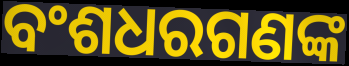
ବଂଶଧରଗଣଙ୍କ